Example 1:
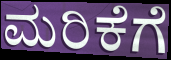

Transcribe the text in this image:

ಮರಿಕೆಗೆ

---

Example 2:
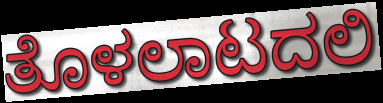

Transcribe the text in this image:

ತೊಳಲಾಟದಲಿ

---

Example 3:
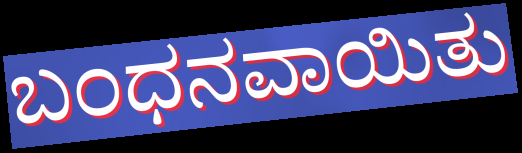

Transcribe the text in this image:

ಬಂಧನವಾಯಿತು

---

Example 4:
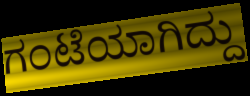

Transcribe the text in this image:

ಗಂಟೆಯಾಗಿದ್ದು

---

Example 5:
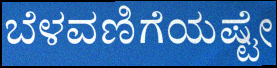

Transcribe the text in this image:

ಬೆಳವಣಿಗೆಯಷ್ಟೇ